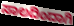
ಸಾಲದಿಂದಾಗಿ